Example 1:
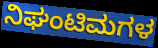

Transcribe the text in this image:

ನಿಘಂಟಿಮಗಳ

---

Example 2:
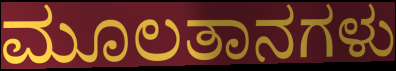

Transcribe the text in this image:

ಮೂಲತಾನಗಳು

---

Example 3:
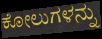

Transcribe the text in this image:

ಕೋಲುಗಳನ್ನು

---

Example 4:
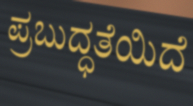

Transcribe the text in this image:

ಪ್ರಬುದ್ಧತೆಯಿದೆ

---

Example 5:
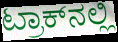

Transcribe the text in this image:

ಟ್ರಾಕ್‌ನಲ್ಲಿ